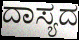
ದಾಸ್ಯದ